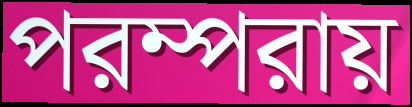
পরম্পরায়